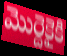
మొర్దెకైకి